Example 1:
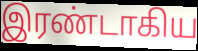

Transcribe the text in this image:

இரண்டாகிய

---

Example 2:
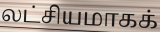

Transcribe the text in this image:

லட்சியமாகக்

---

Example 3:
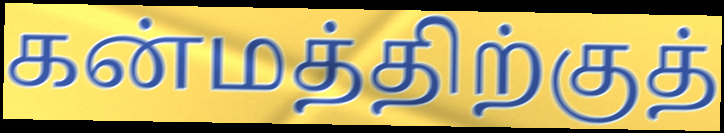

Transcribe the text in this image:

கன்மத்திற்குத்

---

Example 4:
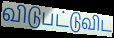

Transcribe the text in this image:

விடுபட்டுவிட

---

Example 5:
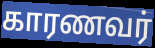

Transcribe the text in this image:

காரணவர்